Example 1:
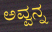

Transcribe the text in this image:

ಅವ್ವನ್ನ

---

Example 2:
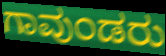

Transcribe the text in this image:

ಗಾವುಂಡರು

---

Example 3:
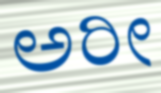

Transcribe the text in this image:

ಅರೀ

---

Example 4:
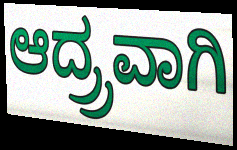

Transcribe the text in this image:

ಆದ್ರ್ರವಾಗಿ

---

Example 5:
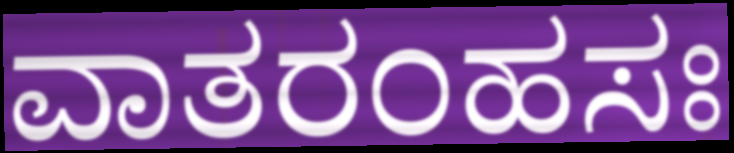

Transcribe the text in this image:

ವಾತರಂಹಸಃ